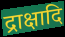
द्राक्षादि